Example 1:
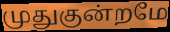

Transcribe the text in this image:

முதுகுன்றமே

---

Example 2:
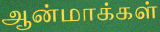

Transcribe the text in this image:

ஆன்மாக்கள்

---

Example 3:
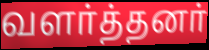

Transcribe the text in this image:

வளர்த்தனர்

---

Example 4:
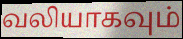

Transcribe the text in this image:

வலியாகவும்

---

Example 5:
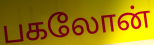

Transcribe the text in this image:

பகலோன்